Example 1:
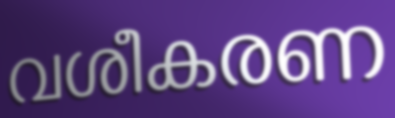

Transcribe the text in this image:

വശീകരണ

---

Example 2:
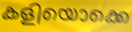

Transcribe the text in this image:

കളിയൊക്കെ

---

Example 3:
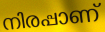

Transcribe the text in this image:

നിരപ്പാണ്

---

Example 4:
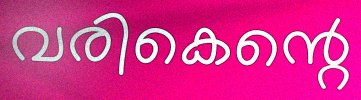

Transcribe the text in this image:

വരികെന്റെ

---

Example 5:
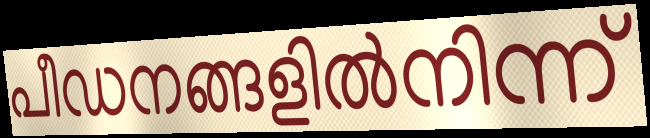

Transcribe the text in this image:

പീഡനങ്ങളിൽനിന്ന്